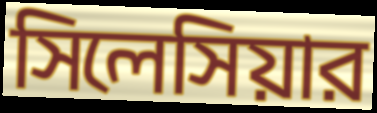
সিলেসিয়ার